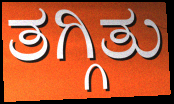
ತಗ್ಗಿತು